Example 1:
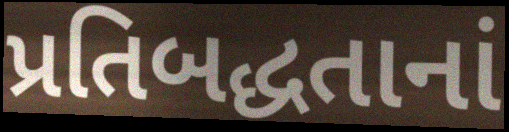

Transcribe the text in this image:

પ્રતિબદ્ધતાનાં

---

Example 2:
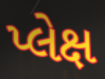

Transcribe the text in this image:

પ્લેક્ષ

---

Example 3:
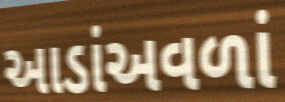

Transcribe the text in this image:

આડાંઅવળાં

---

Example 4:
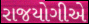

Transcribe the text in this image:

રાજયોગીએ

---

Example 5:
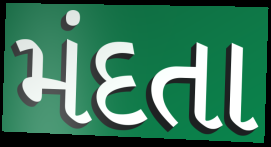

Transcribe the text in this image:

મંદતા